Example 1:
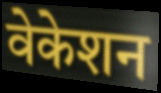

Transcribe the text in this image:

वेकेशन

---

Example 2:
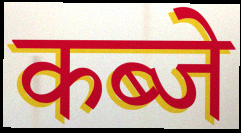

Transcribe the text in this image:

कब्जे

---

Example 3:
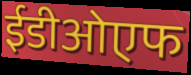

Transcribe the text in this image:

ईडीओएफ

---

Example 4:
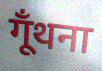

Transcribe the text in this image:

गूँथना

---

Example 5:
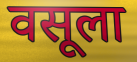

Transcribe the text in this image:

वसूला